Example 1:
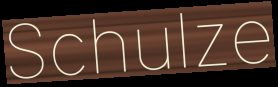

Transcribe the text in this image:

Schulze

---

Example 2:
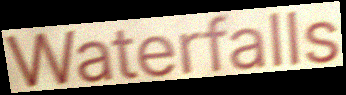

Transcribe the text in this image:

Waterfalls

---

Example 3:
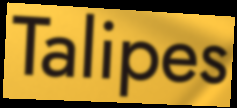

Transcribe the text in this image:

Talipes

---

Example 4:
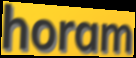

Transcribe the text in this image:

horam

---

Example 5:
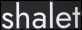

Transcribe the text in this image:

shalet